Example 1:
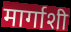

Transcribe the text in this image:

मार्गाशी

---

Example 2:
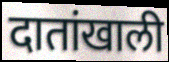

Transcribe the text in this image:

दातांखाली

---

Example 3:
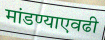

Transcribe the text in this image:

मांडण्याएवढी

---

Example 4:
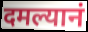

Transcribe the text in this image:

दमल्यानं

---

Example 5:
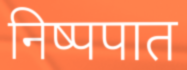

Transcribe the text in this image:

निष्पपात